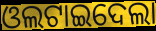
ଓଲଟାଇଦେଲା